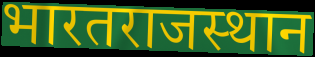
भारतराजस्थान